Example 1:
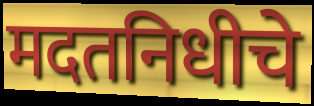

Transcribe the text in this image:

मदतनिधीचे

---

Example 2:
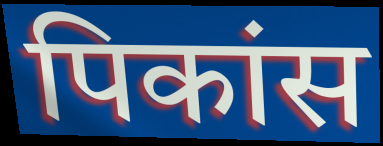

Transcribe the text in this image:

पिकांस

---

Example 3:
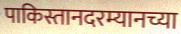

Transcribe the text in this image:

पाकिस्तानदरम्यानच्या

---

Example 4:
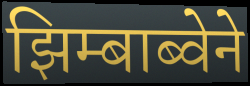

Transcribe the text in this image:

झिम्बाब्वेने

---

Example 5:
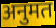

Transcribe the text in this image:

अनुमत